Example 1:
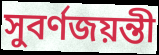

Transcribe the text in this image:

সুবর্ণজয়ন্তী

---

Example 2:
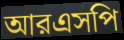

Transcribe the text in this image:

আরএসপি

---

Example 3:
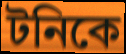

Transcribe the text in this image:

টনিকে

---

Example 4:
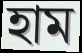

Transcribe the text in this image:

হাম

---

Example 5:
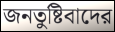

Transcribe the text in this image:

জনতুষ্টিবাদের